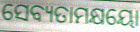
ସେବ୍ୟତାମକ୍ଷୟୋ